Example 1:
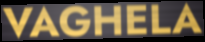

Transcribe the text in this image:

VAGHELA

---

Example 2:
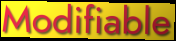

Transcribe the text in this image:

Modifiable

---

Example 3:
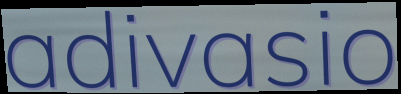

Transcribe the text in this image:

adivasio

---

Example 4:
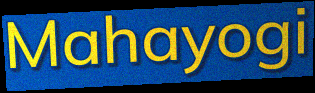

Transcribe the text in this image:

Mahayogi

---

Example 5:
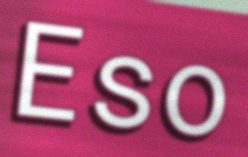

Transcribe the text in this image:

Eso